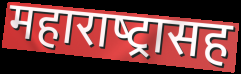
महाराष्ट्रासह